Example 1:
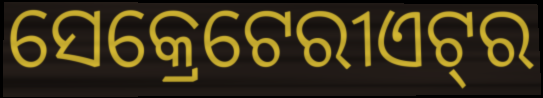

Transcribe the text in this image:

ସେକ୍ରେଟେରୀଏଟ୍‍ର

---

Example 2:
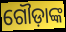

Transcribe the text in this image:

ଗୌଡ଼ାଙ୍କ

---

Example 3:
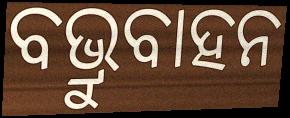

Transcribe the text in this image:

ବଭ୍ରୁବାହନ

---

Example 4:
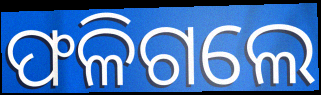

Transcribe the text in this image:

ଫଳିଗଲେ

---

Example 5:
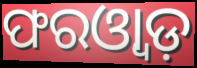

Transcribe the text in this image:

ଫରଓ୍ୱାଡ଼